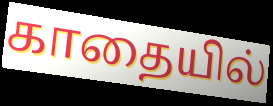
காதையில்